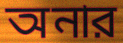
অনার